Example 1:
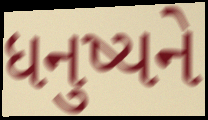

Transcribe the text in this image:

ધનુષ્યને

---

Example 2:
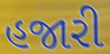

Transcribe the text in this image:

હજારી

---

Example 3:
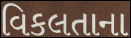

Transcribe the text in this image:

વિકલતાના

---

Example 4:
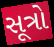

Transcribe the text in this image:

સૂત્રો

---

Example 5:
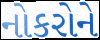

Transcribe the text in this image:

નોકરોને